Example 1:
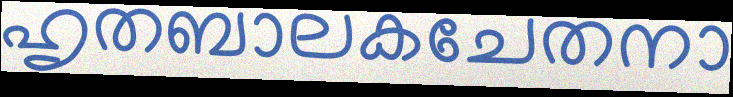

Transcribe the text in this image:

ഹൃതബാലകചേതനാ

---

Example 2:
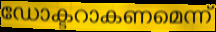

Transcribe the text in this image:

ഡോക്ടറാകണമെന്ന്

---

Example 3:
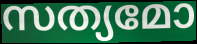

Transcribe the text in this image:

സത്യമോ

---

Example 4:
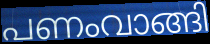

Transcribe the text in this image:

പണംവാങ്ങി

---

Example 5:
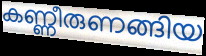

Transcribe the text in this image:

കണ്ണീരുണങ്ങിയ